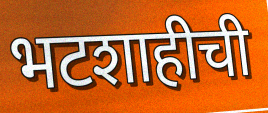
भटशाहीची